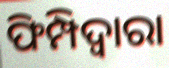
ଫିମ୍ପିଦ୍ଵାରା